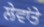
ਲੇਵਾਂਤੇ